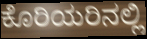
ಕೊರಿಯರಿನಲ್ಲಿ